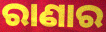
ରାଣାର